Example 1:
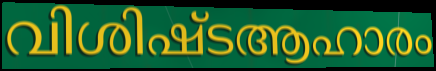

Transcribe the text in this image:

വിശിഷ്ടആഹാരം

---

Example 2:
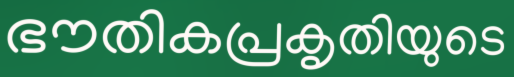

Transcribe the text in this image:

ഭൗതികപ്രകൃതിയുടെ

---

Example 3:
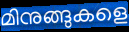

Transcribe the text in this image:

മിനുങ്ങുകളെ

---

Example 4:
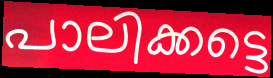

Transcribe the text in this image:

പാലിക്കട്ടെ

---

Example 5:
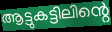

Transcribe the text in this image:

ആട്ടുകട്ടിലിന്റെ